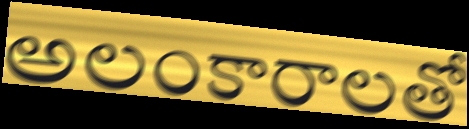
అలంకారాలతో